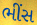
ભીંસ